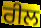
ਰੀਲ